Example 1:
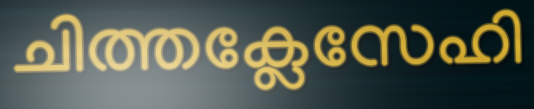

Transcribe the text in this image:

ചിത്തക്ലേസേഹി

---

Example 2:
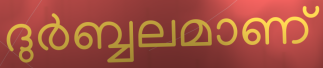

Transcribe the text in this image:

ദുർബ്ബലമാണ്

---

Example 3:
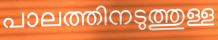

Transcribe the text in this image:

പാലത്തിനടുത്തുള്ള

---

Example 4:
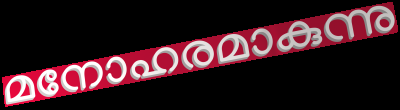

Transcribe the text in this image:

മനോഹരമാകുന്നു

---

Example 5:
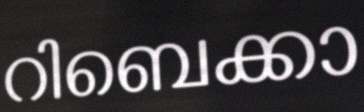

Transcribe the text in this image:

റിബെക്കാ